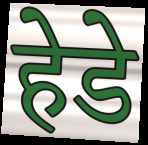
हेडे